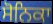
ਸੋਨਿਕਾ